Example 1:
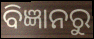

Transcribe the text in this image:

ବିଜ୍ଞାନରୁ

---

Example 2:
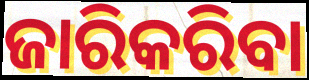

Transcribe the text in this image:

ଜାରିକରିବା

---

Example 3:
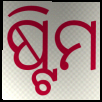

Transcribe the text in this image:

ଷ୍ଟିମ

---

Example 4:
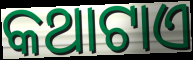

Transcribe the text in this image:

କଥାଟାଏ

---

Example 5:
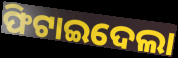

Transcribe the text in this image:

ଫିଟାଇଦେଲା